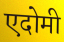
एदोमी